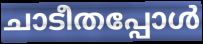
ചാടീതപ്പോൾ